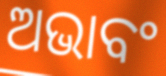
ଅଭାବଂ